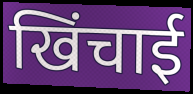
खिंचाई